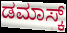
ಡಮಾಸ್ಕ್